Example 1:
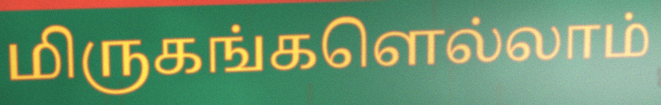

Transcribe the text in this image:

மிருகங்களெல்லாம்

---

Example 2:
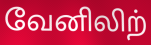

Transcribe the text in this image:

வேனிலிற்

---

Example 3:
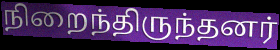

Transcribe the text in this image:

நிறைந்திருந்தனர்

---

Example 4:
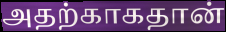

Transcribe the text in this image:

அதற்காகதான்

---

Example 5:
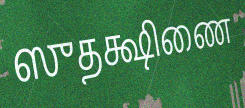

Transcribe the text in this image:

ஸுதக்ஷிணை